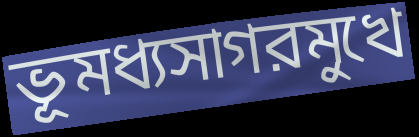
ভূমধ্যসাগরমুখে